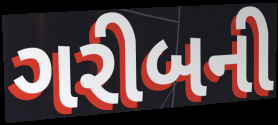
ગરીબની